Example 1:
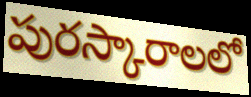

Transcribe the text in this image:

పురస్కారాలలో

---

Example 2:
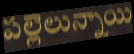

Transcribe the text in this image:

పల్లెలున్నాయి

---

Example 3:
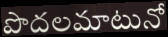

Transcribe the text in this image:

పొదలమాటునో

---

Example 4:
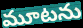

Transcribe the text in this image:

మూటను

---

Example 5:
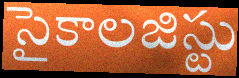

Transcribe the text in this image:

సైకాలజిస్టు